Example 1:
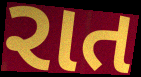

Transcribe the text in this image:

રાત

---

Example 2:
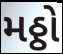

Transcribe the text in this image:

મઠ્ઠો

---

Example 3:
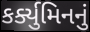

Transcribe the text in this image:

કર્ક્યુમિનનું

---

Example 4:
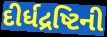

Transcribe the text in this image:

દીર્ધદ્રષ્ટિની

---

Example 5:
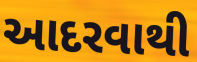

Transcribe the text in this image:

આદરવાથી